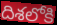
దిశలోకి